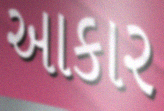
આકાર